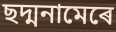
ছদ্মনামেৰে